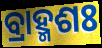
ବ୍ରାହ୍ମଶଃ